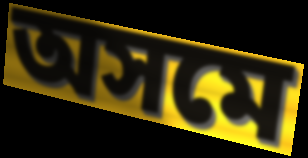
অসমে